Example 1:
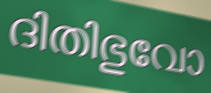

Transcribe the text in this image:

ദിതിഭുവോ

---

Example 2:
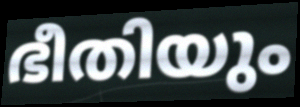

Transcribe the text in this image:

ഭീതിയും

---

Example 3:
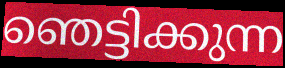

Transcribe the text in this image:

ഞെട്ടിക്കുന്ന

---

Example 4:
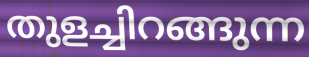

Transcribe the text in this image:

തുളച്ചിറങ്ങുന്ന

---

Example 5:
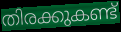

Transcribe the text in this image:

തിരക്കുകണ്ട്